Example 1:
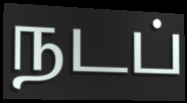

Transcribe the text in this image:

நடப்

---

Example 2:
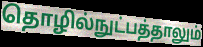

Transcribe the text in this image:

தொழில்நுட்பத்தாலும்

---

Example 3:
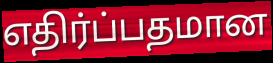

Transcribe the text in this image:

எதிர்ப்பதமான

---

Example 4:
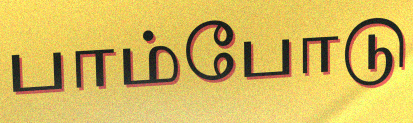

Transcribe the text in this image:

பாம்போடு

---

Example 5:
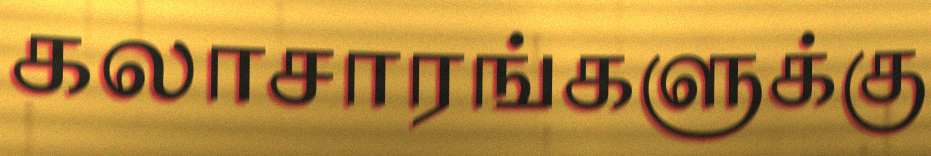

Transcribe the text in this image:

கலாசாரங்களுக்கு